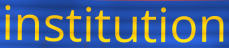
institution